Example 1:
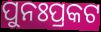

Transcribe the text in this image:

ପୁନଃପ୍ରକଟ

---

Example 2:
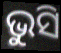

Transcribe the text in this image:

ଭୁସି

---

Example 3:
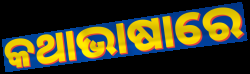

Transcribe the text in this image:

କଥାଭାଷାରେ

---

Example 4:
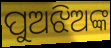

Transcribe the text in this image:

ପୁଅଝିଅଙ୍କ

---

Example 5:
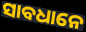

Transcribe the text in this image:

ସାବଧାନେ